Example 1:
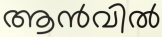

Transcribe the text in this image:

ആൻവിൽ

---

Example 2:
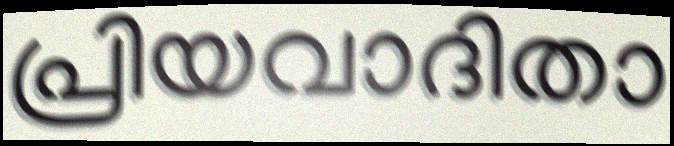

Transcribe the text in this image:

പ്രിയവാദിതാ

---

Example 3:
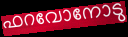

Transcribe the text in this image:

ഫറവോനോടു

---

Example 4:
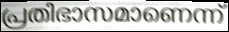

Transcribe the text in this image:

പ്രതിഭാസമാണെന്ന്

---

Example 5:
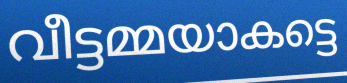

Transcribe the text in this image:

വീട്ടമ്മയാകട്ടെ